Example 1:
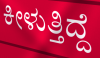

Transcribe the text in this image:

ಕೀಳುತ್ತಿದ್ದೆ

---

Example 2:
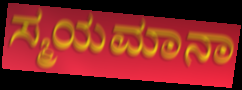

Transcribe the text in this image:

ಸ್ಮಯಮಾನಾ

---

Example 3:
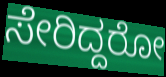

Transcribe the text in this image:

ಸೇರಿದ್ದರೋ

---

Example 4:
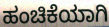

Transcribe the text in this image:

ಹಂಚಿಕೆಯಾಗಿ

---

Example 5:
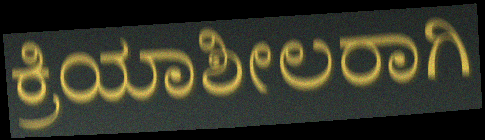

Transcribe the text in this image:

ಕ್ರಿಯಾಶೀಲರಾಗಿ